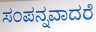
ಸಂಪನ್ನವಾದರೆ